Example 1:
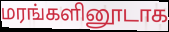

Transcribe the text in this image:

மரங்களினூடாக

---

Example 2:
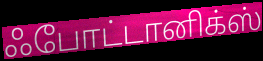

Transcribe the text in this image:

ஃபோட்டானிக்ஸ்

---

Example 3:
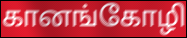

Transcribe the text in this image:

கானங்கோழி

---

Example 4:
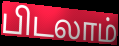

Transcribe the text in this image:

பிடலாம்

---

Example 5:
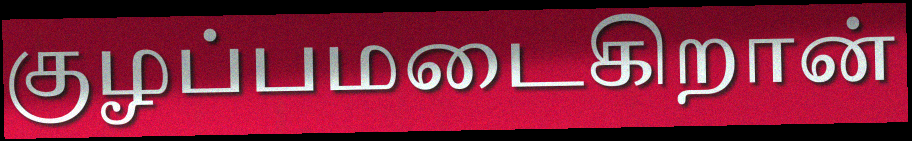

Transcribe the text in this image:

குழப்பமடைகிறான்